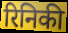
रिनिकी